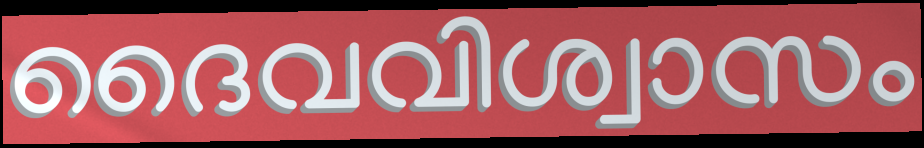
ദൈവവിശ്വാസം